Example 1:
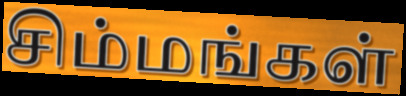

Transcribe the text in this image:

சிம்மங்கள்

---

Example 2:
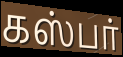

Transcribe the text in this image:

கஸ்பர்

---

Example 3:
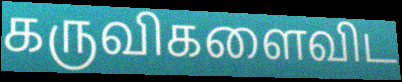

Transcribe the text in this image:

கருவிகளைவிட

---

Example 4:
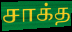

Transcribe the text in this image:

சாக்த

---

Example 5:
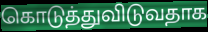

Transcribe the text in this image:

கொடுத்துவிடுவதாக